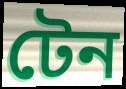
টেন